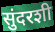
सुंदरशी